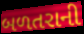
બળતરાની